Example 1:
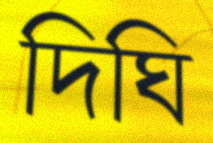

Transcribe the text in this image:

দিঘি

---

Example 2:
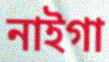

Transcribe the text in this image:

নাইগা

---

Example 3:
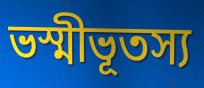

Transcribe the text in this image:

ভস্মীভূতস্য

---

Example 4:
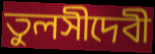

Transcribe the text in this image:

তুলসীদেবী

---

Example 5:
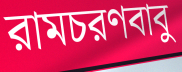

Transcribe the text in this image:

রামচরণবাবু